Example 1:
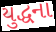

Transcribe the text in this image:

યુદ્ધના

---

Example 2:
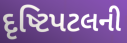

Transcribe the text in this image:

દૃષ્ટિપટલની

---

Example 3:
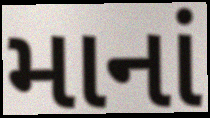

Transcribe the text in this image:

માનાં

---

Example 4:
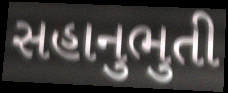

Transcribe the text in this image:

સહાનુભુતી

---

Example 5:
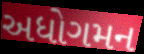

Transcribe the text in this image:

અધોગમન